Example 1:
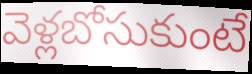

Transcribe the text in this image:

వెళ్లబోసుకుంటే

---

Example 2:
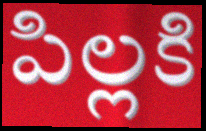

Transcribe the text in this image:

పిల్లకి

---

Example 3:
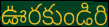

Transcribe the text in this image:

ఊరకుండిరి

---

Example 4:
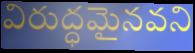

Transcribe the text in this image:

విరుద్ధమైనవని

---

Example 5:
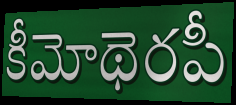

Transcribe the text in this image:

కీమోథెరపీ